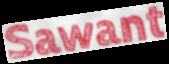
Sawant